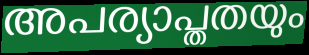
അപര്യാപ്തതയും